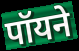
पॉयने